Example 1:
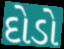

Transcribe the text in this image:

દોડો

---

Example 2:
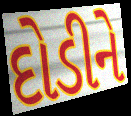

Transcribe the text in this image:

દોડીને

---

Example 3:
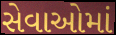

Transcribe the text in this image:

સેવાઓમાં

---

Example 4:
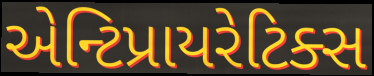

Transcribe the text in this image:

એન્ટિપ્રાયરેટિક્સ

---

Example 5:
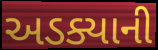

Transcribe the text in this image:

અડક્યાની